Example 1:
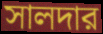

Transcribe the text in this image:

সালদার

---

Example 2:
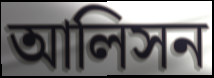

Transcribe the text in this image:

আলিসন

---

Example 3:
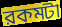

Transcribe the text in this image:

রকমটা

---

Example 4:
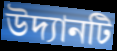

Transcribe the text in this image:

উদ্যানটি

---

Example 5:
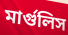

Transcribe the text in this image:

মার্গুলিস